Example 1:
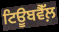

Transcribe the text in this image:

ਟਿਊਬਵੈੱਲ਼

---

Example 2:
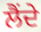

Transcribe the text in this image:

ਲੈਂਦੇ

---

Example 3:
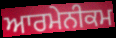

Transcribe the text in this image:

ਆਰਮੇਨੀਕਮ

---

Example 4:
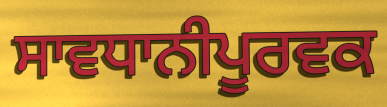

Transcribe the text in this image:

ਸਾਵਧਾਨੀਪੂਰਵਕ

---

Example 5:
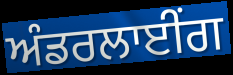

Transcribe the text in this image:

ਅੰਡਰਲਾਈੰਗ